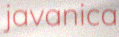
javanica